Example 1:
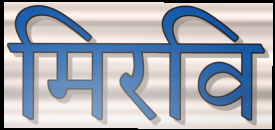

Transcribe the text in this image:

मिरवि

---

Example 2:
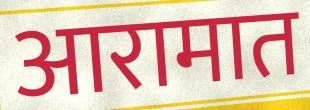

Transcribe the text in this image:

आरामात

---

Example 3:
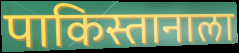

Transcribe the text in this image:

पाकिस्तानाला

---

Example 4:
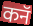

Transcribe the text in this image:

कनॅ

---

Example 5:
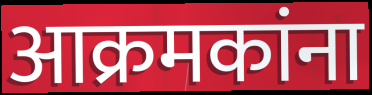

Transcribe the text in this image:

आक्रमकांना